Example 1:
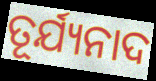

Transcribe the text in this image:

ତୂର୍ଯ୍ୟନାଦ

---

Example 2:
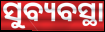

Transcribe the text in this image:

ସୁବ୍ୟବସ୍ଥା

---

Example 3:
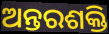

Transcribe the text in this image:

ଅନ୍ତରଶକ୍ତି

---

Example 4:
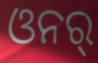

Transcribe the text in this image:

ଓନର୍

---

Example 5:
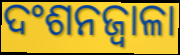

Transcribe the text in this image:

ଦଂଶନଜ୍ୱାଳା